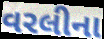
વરલીના